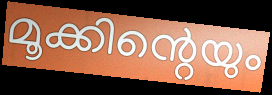
മൂക്കിന്റെയും